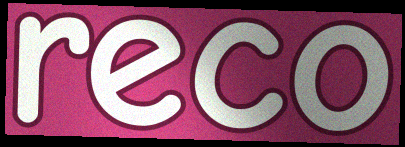
reco